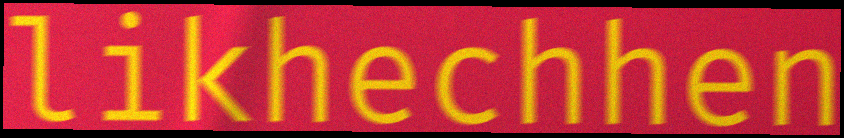
likhechhen